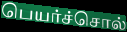
பெயர்ச்சொல்